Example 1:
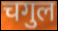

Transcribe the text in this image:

चगुल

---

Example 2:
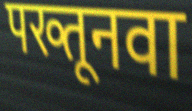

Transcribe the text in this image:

पख्तूनवा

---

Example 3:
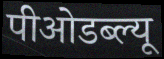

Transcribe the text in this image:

पीओडब्ल्यू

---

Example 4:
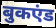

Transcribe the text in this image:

बुकएंड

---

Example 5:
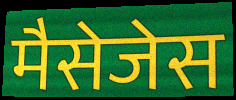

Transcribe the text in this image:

मैसेजेस